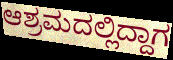
ಆಶ್ರಮದಲ್ಲಿದ್ದಾಗ